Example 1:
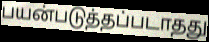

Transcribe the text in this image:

பயன்படுத்தப்படாதது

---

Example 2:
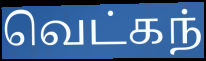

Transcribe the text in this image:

வெட்கந்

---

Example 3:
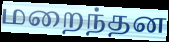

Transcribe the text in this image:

மறைந்தன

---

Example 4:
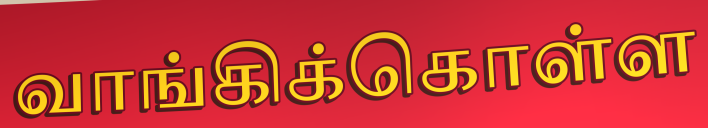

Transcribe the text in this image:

வாங்கிக்கொள்ள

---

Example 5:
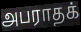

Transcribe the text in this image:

அபராதக்